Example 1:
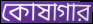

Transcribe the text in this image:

কোষাগার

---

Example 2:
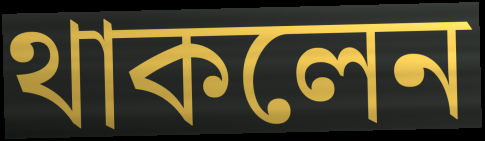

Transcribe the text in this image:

থাকলেন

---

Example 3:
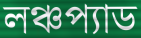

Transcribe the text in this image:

লঞ্চপ্যাড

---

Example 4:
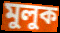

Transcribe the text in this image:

মুলুক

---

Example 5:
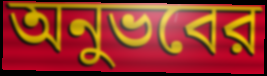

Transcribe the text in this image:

অনুভবের